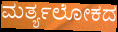
ಮರ್ತ್ಯಲೋಕದ